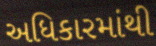
અધિકારમાંથી